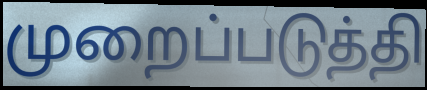
முறைப்படுத்தி